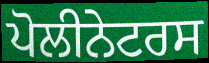
ਪੋਲੀਨੇਟਰਸ